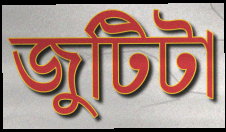
জুটিটা